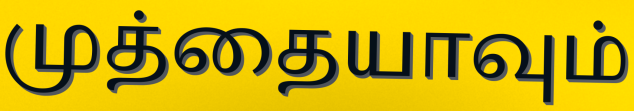
முத்தையாவும்